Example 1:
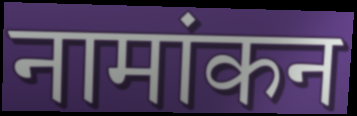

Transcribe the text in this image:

नामांकन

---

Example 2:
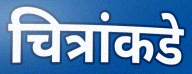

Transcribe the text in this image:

चित्रांकडे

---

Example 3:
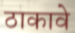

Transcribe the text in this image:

ठाकावे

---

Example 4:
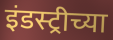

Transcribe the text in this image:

इंडस्ट्रीच्या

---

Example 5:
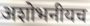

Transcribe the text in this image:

अशोभनीयच